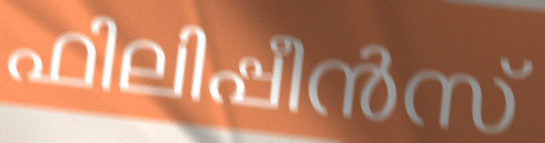
ഫിലിപ്പീൻസ്